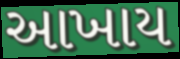
આખાય